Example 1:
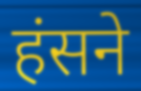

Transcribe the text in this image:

हंसने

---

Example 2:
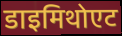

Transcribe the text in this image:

डाइमिथोएट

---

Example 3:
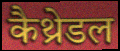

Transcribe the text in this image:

कैथ्रेडल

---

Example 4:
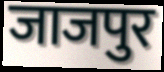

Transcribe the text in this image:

जाजपुर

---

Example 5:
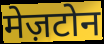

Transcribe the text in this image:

मेज़टोन